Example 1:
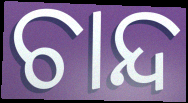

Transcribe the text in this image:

ଚାନ୍ଦ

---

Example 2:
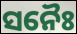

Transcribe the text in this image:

ସନୈଃ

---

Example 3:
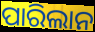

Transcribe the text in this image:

ପାରିଲାନ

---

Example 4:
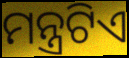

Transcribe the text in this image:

ମନ୍ତ୍ରଟିଏ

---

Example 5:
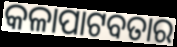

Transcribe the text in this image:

କଳାପାଟବତାର